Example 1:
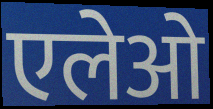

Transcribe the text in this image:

एलेओ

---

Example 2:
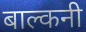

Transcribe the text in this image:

बाल्कनी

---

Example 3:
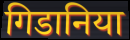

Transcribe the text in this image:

गिडानिया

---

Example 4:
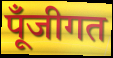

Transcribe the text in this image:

पूँजीगत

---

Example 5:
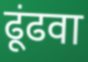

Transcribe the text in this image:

ढूंढवा